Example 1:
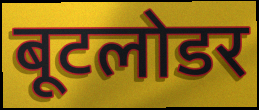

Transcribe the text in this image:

बूटलोडर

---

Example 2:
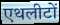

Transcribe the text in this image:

एथलीटों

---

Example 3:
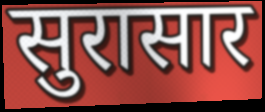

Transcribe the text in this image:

सुरासार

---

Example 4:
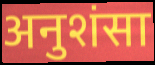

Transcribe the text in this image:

अनुशंसा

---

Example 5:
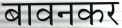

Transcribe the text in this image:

बावनकर